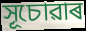
সূচোৱাৰ